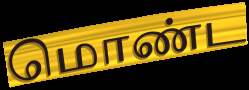
மொண்ட